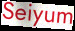
Seiyum